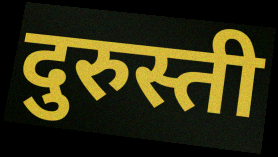
दुरुस्ती